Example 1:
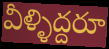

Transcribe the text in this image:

వీళ్ళిద్దరూ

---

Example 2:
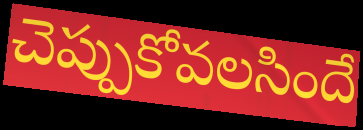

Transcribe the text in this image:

చెప్పుకోవలసిందే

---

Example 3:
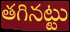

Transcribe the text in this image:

తగినట్టు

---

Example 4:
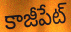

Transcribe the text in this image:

కాజీపేట్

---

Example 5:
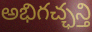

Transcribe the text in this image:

అభిగచ్ఛన్తి